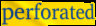
perforated